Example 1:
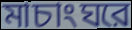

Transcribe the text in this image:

মাচাংঘরে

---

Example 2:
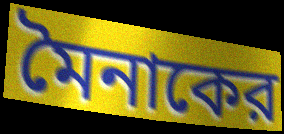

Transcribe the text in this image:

মৈনাকের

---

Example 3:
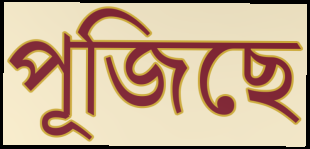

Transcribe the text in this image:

পূজিছে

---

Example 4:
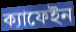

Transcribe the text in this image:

ক্যাফেইন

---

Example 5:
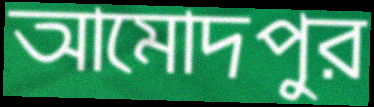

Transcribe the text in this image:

আমোদপুর